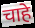
चाहे